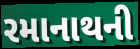
રમાનાથની